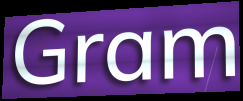
Gram